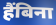
हैंबिना